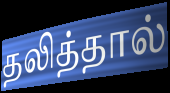
தலித்தால்